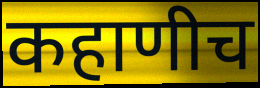
कहाणीच